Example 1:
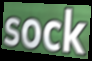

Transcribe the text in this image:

sock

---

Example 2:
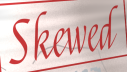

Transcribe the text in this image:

Skewed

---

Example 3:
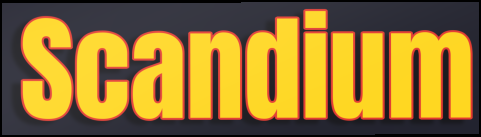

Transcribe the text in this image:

Scandium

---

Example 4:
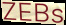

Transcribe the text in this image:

ZEBs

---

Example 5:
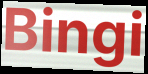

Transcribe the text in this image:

Bingi